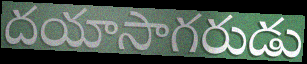
దయాసాగరుడు